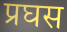
प्रघस